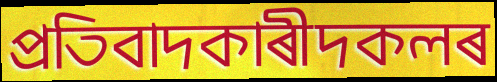
প্ৰতিবাদকাৰীদকলৰ